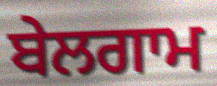
ਬੇਲਗਾਮ